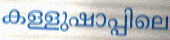
കള്ളുഷാപ്പിലെ